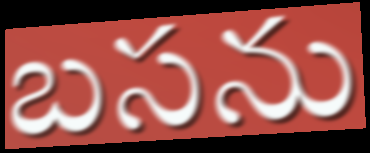
బసను